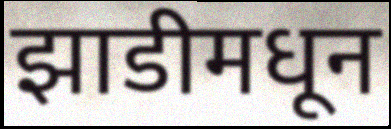
झाडीमधून